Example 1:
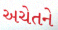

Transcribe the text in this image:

અચેતને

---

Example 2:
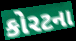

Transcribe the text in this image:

કોરટના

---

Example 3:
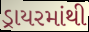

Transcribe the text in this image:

ડ્રાયરમાંથી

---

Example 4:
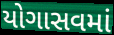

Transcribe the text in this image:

યોગાસવમાં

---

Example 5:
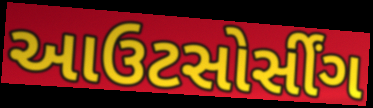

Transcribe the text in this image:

આઉટસોર્સીંગ